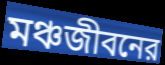
মঞ্চজীবনের